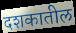
दशकातील